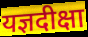
यज्ञदीक्षा